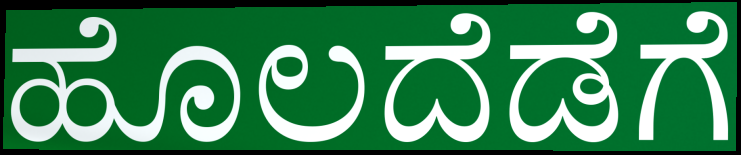
ಹೊಲದೆಡೆಗೆ